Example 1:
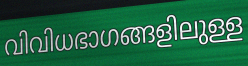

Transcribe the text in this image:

വിവിധഭാഗങ്ങളിലുള്ള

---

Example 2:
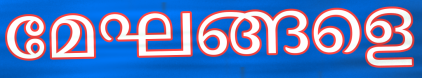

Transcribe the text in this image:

മേഘങ്ങളെ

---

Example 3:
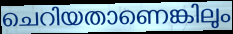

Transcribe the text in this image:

ചെറിയതാണെങ്കിലും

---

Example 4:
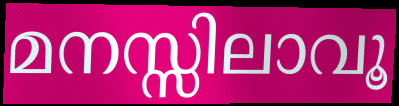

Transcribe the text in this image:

മനസ്സിലാവൂ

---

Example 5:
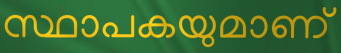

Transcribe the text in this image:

സ്ഥാപകയുമാണ്